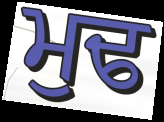
ਮੁਢ